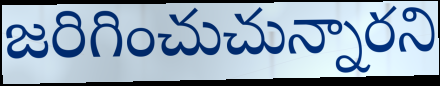
జరిగించుచున్నారని